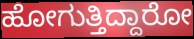
ಹೋಗುತ್ತಿದ್ದಾರೋ